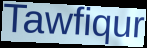
Tawfiqur